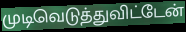
முடிவெடுத்துவிட்டேன்